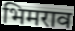
भिमराव